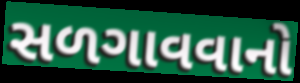
સળગાવવાનો